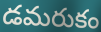
డమరుకం